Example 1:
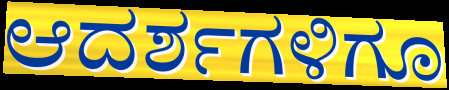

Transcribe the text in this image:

ಆದರ್ಶಗಳಿಗೂ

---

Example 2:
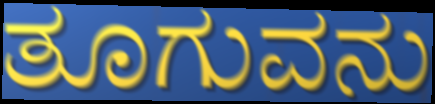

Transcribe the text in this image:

ತೂಗುವನು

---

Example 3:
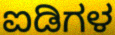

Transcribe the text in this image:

ಐಡಿಗಳ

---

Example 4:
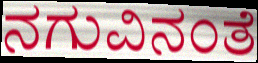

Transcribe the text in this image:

ನಗುವಿನಂತೆ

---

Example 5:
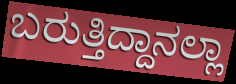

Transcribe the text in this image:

ಬರುತ್ತಿದ್ದಾನಲ್ಲಾ